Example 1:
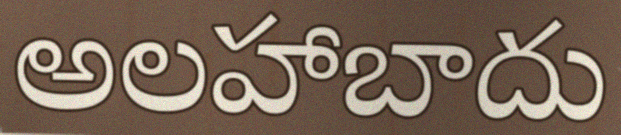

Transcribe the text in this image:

అలహాబాదు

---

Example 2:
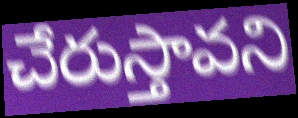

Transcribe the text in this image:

చేరుస్తావని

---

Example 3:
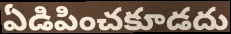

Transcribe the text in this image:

ఏడిపించకూడదు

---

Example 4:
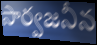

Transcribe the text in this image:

సార్వజనీన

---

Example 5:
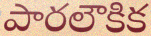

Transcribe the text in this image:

పారలౌకిక